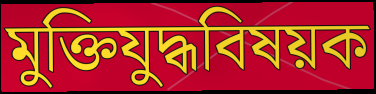
মুক্তিযুদ্ধবিষয়ক